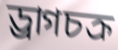
ড্রাগচক্র